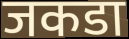
जकडा